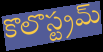
కొలొస్ట్రమ్